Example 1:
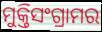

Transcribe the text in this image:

ମୁକ୍ତିସଂଗ୍ରାମର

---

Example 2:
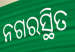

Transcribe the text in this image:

ନଗରସ୍ଥିତ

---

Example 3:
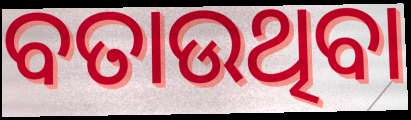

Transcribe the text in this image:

ବତାଉଥିବା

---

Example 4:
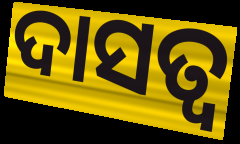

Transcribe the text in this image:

ଦାସତ୍ବ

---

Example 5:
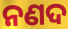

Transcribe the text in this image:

ନଣଦ